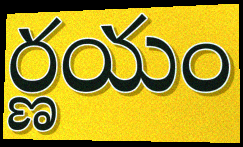
ర్ణయం